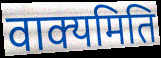
वाक्यमिति